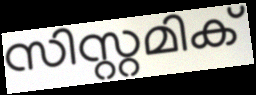
സിസ്റ്റമിക്